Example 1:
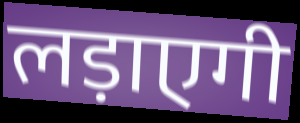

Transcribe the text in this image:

लड़ाएगी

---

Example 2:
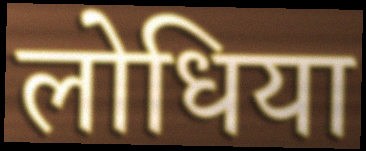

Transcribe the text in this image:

लोधिया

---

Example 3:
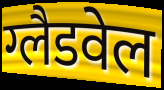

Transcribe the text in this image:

ग्लैडवेल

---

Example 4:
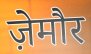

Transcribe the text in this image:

ज़ेमौर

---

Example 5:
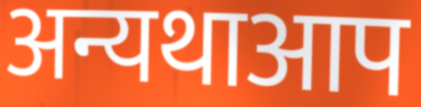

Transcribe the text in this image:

अन्यथाआप